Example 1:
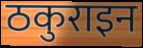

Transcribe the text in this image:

ठकुराइन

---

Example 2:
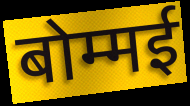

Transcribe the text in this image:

बोम्मई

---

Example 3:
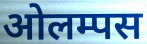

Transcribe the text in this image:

ओलम्पस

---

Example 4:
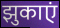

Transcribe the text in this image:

झुकाएं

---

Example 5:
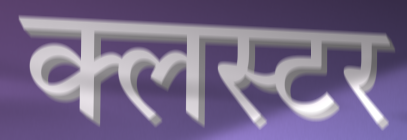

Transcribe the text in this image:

क्‍लस्‍टर